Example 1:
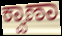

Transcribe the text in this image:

ಕ್ವಾಣಾ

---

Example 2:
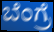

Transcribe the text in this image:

ಬೆಂಗ್ರೆ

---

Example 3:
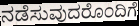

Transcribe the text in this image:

ನಡೆಸುವುದರೊಂದಿಗೆ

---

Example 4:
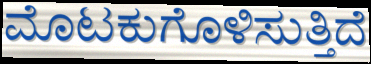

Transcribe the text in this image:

ಮೊಟಕುಗೊಳಿಸುತ್ತಿದೆ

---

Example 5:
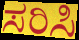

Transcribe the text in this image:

ಸರಿಸಿ